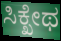
ಸಿಕ್ಖೇಥ